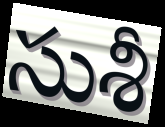
సుశీ